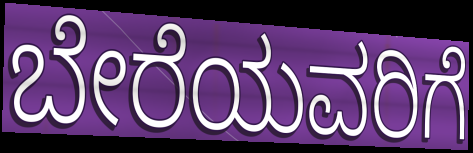
ಬೇರೆಯವರಿಗೆ